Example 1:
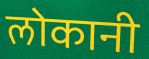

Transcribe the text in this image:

लोकानी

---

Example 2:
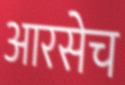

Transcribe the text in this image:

आरसेच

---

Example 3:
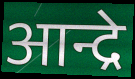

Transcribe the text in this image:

आन्द्रे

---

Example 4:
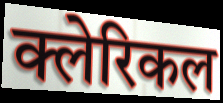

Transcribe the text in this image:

क्लेरिकल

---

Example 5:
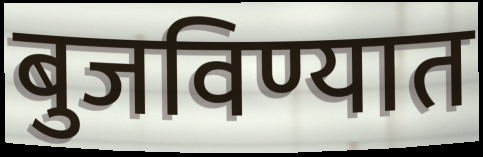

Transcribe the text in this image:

बुजविण्यात